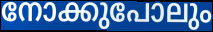
നോക്കുപോലും